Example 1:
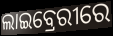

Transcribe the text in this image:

ଲାଇବ୍ରେରୀରେ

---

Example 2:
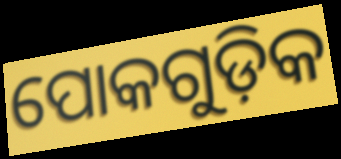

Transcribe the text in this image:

ପୋକଗୁଡ଼ିକ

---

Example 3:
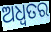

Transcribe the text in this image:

ଅଧ୍ଵତର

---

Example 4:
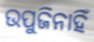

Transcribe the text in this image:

ଉପୁଜିନାହିଁ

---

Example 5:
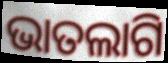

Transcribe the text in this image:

ଭାତଲାଗି